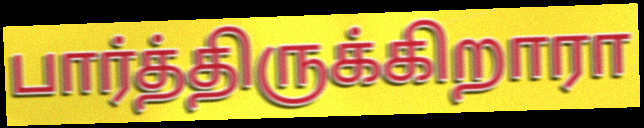
பார்த்திருக்கிறாரா